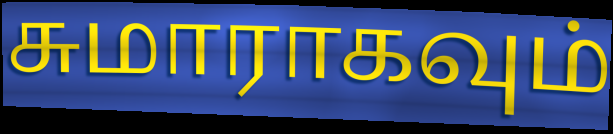
சுமாராகவும்